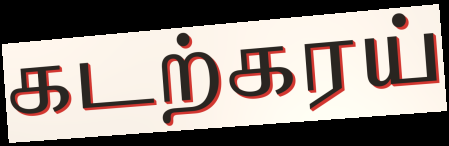
கடற்கரய்